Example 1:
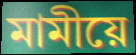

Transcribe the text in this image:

মামীয়ে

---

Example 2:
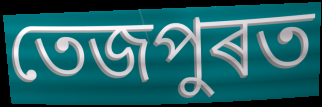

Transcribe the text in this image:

তেজপুৰত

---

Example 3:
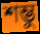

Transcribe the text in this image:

শম্ভু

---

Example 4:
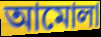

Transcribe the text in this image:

আমোলা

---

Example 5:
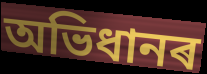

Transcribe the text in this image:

অভিধানৰ